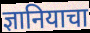
ज्ञानियाचा